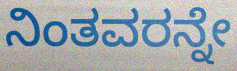
ನಿಂತವರನ್ನೇ